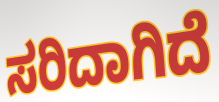
ಸರಿದಾಗಿದೆ